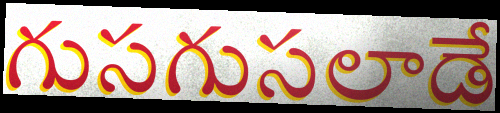
గుసగుసలాడే